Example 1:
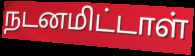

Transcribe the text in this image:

நடனமிட்டாள்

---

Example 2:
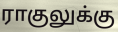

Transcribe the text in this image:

ராகுலுக்கு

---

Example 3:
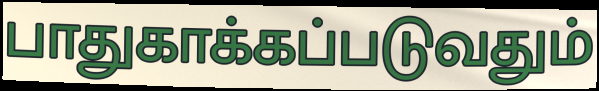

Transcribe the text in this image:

பாதுகாக்கப்படுவதும்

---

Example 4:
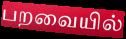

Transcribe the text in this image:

பறவையில்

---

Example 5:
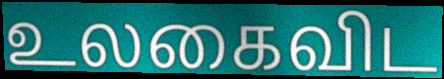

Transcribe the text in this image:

உலகைவிட